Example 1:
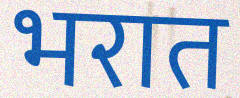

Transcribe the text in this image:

भरात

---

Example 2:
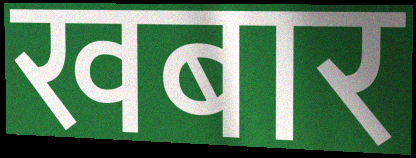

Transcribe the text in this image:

खबार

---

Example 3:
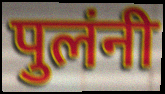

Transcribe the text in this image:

पुलंनी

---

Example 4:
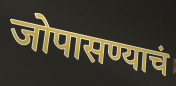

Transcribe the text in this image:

जोपासण्याचं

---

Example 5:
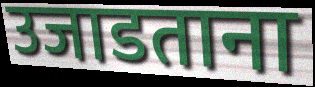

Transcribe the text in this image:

उजाडताना